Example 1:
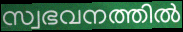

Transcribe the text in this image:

സ്വഭവനത്തിൽ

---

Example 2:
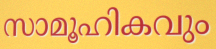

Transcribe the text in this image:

സാമൂഹികവും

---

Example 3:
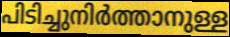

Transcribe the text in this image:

പിടിച്ചുനിർത്താനുള്ള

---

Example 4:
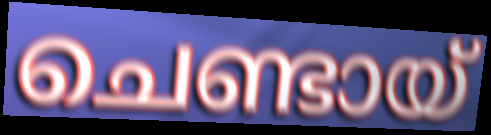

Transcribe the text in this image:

ചെണ്ടായ്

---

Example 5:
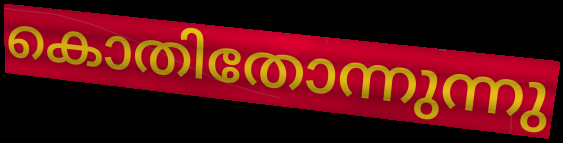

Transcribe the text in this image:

കൊതിതോന്നുന്നു